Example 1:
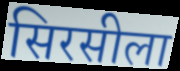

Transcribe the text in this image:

सिरसीला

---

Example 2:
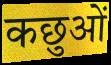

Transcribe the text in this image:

कछुओं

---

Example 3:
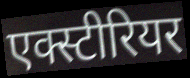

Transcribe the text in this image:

एक्स्टीरियर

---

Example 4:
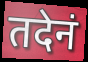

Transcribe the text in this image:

तदेनं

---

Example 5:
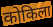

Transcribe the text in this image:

कोकिला